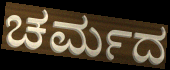
ಚರ್ಮದ